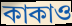
কাকাও